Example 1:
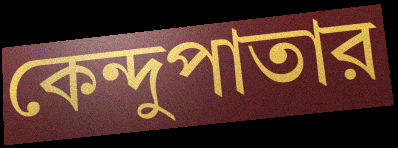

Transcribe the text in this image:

কেন্দুপাতার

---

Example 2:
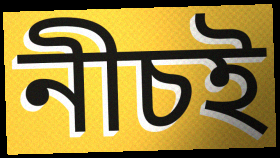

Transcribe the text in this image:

নীচই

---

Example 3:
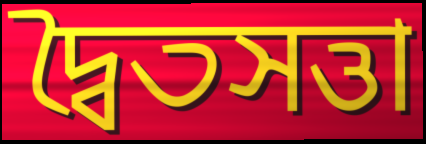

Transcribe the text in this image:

দ্বৈতসত্তা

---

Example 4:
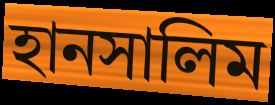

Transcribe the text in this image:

হানসালিম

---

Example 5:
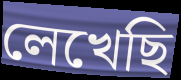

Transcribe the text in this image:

লেখেছি